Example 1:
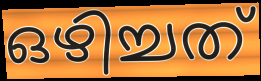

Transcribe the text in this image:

ഒഴിച്ചത്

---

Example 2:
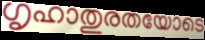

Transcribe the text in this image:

ഗൃഹാതുരതയോടെ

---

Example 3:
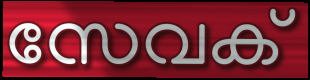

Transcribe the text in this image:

സേവക്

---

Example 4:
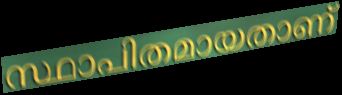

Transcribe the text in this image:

സ്ഥാപിതമായതാണ്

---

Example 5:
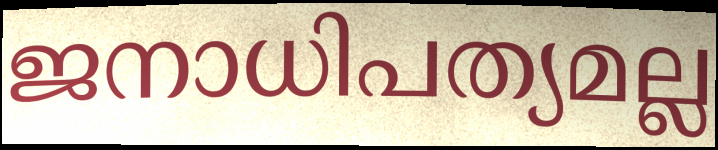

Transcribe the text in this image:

ജനാധിപത്യമല്ല